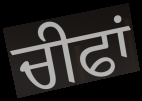
ਚੀਫਾਂ